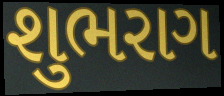
શુભરાગ